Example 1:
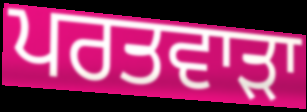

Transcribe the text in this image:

ਪਰਤਵਾੜਾ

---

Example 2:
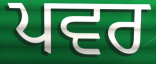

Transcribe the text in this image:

ਪਵਰ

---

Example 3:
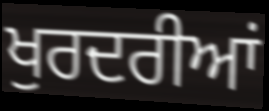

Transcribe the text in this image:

ਖੁਰਦਰੀਆਂ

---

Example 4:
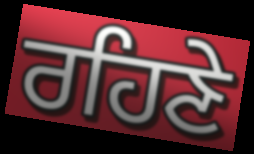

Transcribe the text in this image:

ਰਹਿਣੇ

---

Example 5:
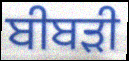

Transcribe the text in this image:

ਬੀਬੜੀ